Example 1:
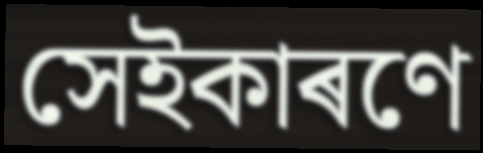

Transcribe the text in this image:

সেইকাৰণে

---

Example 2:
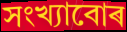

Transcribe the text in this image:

সংখ্যাবোৰ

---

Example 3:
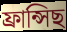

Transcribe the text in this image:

ফ্ৰান্সিছ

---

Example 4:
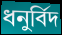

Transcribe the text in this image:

ধনুৰ্বিদ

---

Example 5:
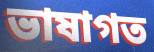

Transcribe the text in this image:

ভাষাগত